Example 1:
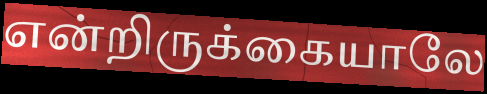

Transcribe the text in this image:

என்றிருக்கையாலே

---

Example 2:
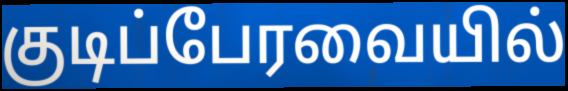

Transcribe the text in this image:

குடிப்பேரவையில்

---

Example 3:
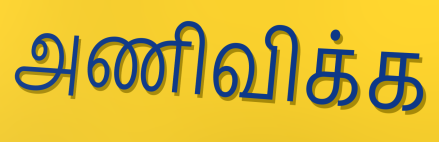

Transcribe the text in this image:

அணிவிக்க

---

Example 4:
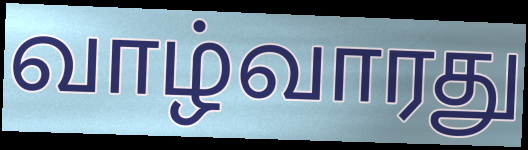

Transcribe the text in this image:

வாழ்வாரது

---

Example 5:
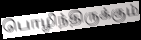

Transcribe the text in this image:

பொழிந்திருக்கும்